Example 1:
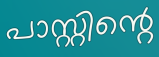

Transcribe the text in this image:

പാസ്റ്റിന്റെ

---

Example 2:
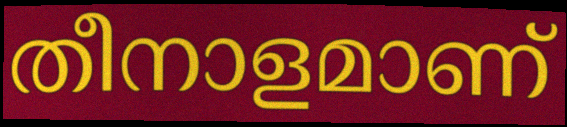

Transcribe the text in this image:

തീനാളമാണ്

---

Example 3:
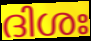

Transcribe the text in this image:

ദിശഃ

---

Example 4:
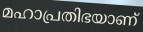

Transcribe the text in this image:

മഹാപ്രതിഭയാണ്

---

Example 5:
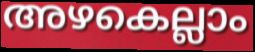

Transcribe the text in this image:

അഴകെല്ലാം